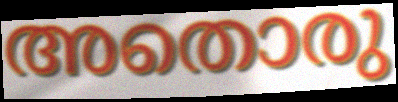
അതൊരു